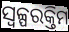
ସ୍ୱଳ୍ପରକ୍ତିମ